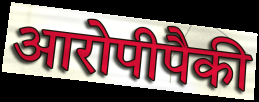
आरोपीपैकी